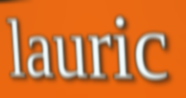
lauric